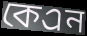
কেএন